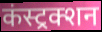
कंस्ट्रक्शन